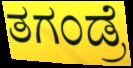
ತಗಂಡ್ರೆ